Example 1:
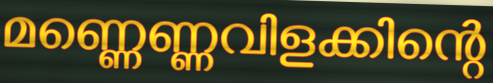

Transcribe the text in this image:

മണ്ണെണ്ണവിളക്കിന്റെ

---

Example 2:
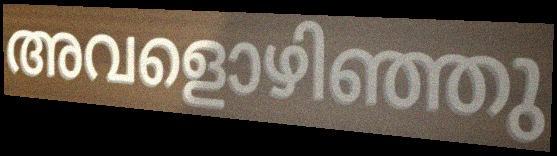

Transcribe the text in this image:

അവളൊഴിഞ്ഞു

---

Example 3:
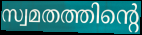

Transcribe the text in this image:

സ്വമതത്തിന്റെ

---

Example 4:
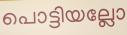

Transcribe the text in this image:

പൊട്ടിയല്ലോ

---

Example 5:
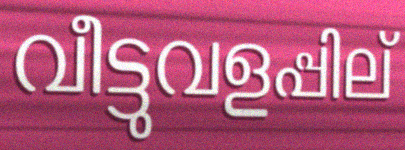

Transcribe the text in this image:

വീട്ടുവളപ്പില്